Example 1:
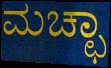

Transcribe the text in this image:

ಮಚ್ಛಾ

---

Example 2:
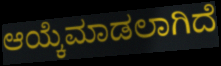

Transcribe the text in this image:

ಆಯ್ಕೆಮಾಡಲಾಗಿದೆ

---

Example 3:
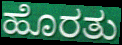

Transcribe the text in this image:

ಹೊರತು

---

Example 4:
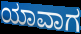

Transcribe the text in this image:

ಯಾವಾಗ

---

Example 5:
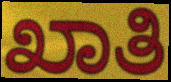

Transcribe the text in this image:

ಖಾತಿ